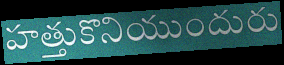
హత్తుకొనియుందురు